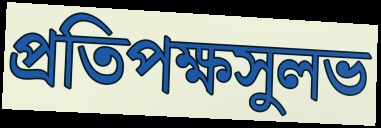
প্রতিপক্ষসুলভ